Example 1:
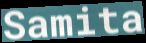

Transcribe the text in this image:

Samita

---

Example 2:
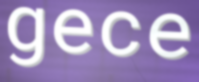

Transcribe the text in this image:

gece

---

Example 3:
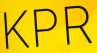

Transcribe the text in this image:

KPR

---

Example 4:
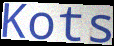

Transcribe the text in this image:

Kots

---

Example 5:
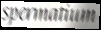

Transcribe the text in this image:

spermatium